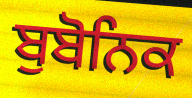
ਬੁਬੋਨਿਕ